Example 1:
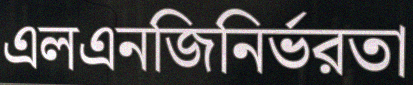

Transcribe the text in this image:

এলএনজিনির্ভরতা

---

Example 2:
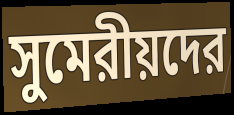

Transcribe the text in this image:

সুমেরীয়দের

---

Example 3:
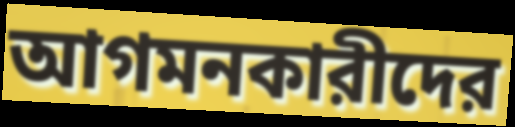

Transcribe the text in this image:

আগমনকারীদের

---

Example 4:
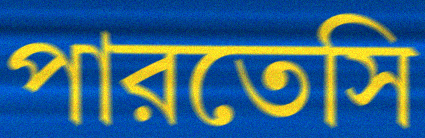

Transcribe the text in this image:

পারতেসি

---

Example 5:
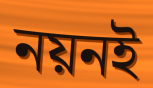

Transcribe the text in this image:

নয়নই